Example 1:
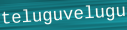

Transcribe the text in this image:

teluguvelugu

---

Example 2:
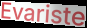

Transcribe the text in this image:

Evariste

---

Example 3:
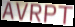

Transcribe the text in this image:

AVRPT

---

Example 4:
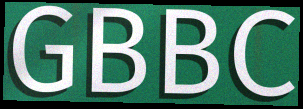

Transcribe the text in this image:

GBBC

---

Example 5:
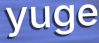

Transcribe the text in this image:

yuge